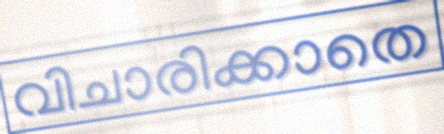
വിചാരിക്കാതെ